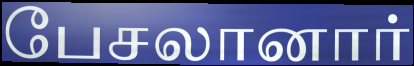
பேசலானார்